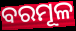
ବରମୂଳ